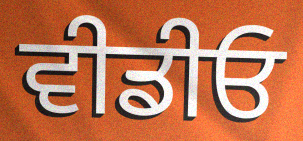
ਵੀਡੀਓ